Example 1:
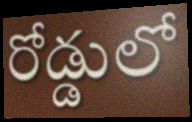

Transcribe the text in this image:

రోడ్డులో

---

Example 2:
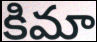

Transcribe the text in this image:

కిమా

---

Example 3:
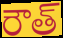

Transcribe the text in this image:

రౌత్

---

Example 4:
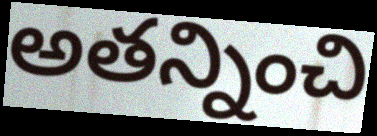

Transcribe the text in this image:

అతన్నించి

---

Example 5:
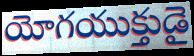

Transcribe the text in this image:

యోగయుక్తుడై